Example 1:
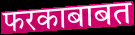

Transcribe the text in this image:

फरकाबाबत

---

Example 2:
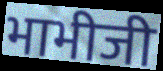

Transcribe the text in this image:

भाभीजी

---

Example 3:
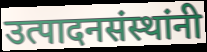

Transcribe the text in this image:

उत्पादनसंस्थांनी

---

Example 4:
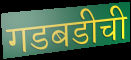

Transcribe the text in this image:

गडबडीची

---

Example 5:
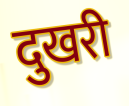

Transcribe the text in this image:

दुखरी